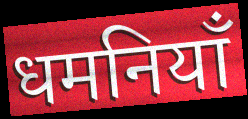
धमनियाँ